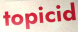
topicid